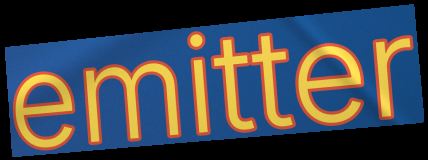
emitter